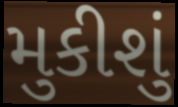
મુકીશું